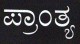
ಪ್ರಾಂತ್ಯ